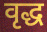
वृद्ध